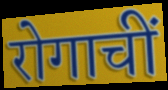
रोगाचीं